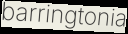
barringtonia